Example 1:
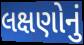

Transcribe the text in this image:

લક્ષણોનું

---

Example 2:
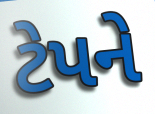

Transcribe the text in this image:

ટેપને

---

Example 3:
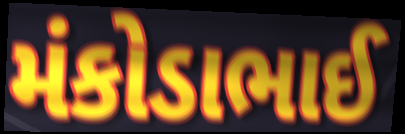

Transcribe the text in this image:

મંકોડાભાઈ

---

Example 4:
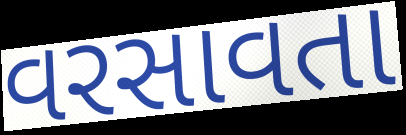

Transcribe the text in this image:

વરસાવતા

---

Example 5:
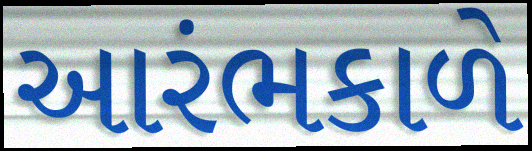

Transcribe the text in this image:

આરંભકાળે